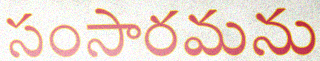
సంసారమను